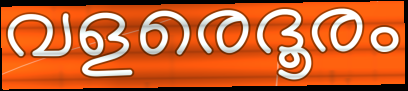
വളരെദൂരം